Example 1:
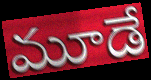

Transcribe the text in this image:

మూడే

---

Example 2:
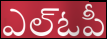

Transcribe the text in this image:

ఎల్ఓపీ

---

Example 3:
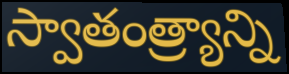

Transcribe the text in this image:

స్వాతంత్ర్యాన్ని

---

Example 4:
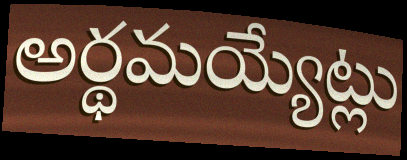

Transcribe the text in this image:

అర్థమయ్యేట్లు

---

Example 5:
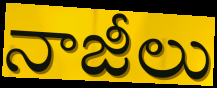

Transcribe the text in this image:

నాజీలు